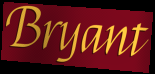
Bryant